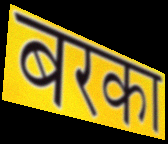
बरका